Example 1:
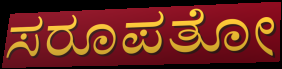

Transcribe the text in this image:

ಸರೂಪತೋ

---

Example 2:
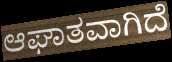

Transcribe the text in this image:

ಆಘಾತವಾಗಿದೆ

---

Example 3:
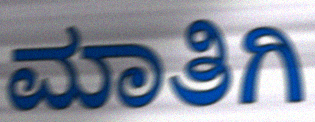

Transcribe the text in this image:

ಮಾತಿಗಿ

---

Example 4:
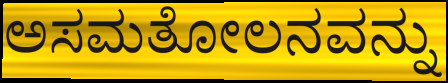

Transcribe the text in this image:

ಅಸಮತೋಲನವನ್ನು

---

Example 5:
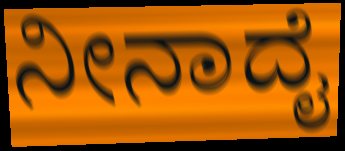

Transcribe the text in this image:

ನೀನಾದೈ